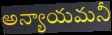
అన్యాయమనీ